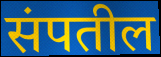
संपतील